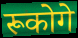
रूकोगे